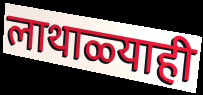
लाथाळ्याही